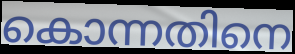
കൊന്നതിനെ